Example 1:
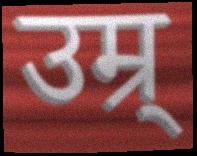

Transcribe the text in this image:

उम्र्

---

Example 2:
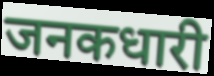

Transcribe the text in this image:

जनकधारी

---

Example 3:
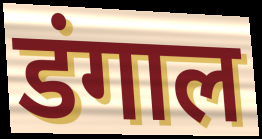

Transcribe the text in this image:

डंगाल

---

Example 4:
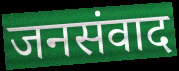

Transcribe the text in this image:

जनसंवाद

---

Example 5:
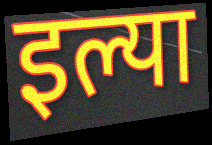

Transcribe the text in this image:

इल्या